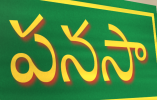
పనసా